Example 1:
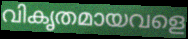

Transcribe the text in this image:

വികൃതമായവളെ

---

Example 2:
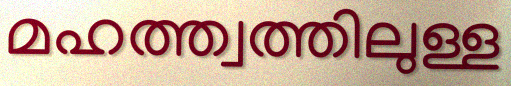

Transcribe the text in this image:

മഹത്ത്വത്തിലുള്ള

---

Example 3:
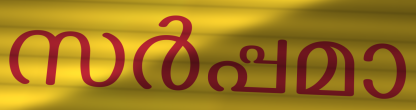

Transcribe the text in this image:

സർപ്പമാ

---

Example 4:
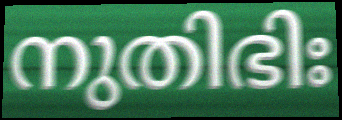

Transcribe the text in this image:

നുതിഭിഃ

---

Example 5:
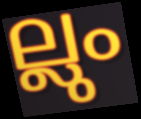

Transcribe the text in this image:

ല്ലും